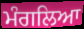
ਮੰਗਲਿਆ